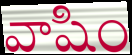
వాషిం